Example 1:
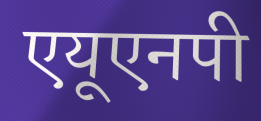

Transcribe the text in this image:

एयूएनपी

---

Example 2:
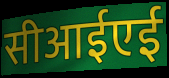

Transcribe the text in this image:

सीआईएई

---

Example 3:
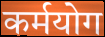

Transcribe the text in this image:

कर्मयोग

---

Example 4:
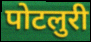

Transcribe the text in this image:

पोटलुरी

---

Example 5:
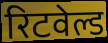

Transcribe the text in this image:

रिटवेल्ड